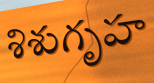
శిశుగృహ